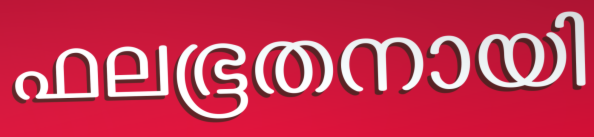
ഫലഭൂതനായി